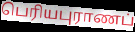
பெரியபுராணப்